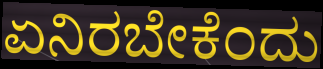
ಏನಿರಬೇಕೆಂದು